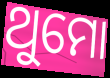
ଥୁମୋ